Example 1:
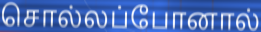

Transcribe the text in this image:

சொல்லப்போனால்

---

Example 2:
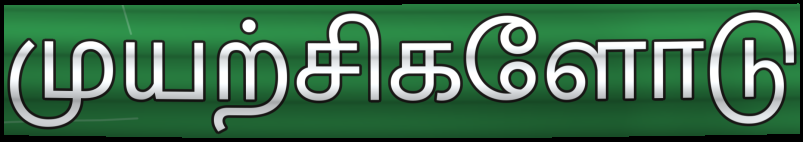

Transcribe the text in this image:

முயற்சிகளோடு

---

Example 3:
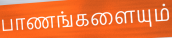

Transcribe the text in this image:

பாணங்களையும்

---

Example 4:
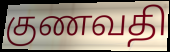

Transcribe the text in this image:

குணவதி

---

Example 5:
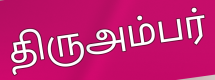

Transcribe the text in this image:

திருஅம்பர்